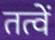
तत्वें